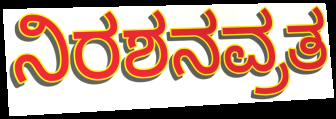
ನಿರಶನವ್ರತ